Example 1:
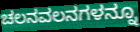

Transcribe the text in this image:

ಚಲನವಲನಗಳನ್ನೂ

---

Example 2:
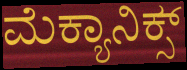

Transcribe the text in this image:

ಮೆಕ್ಯಾನಿಕ್ಸ್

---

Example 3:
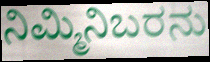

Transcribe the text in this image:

ನಿಮ್ಮಿನಿಬರನು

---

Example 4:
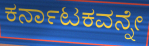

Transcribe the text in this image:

ಕರ್ನಾಟಕವನ್ನೇ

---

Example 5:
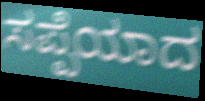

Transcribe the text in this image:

ಸಪ್ಪೆಯಾದ